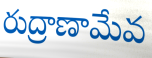
రుద్రాణామేవ